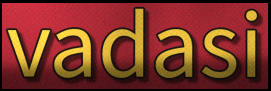
vadasi